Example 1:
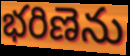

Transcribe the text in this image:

భరిణెను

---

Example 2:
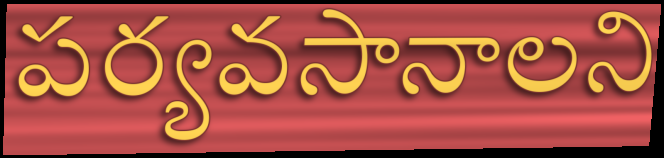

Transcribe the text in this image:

పర్యవసానాలని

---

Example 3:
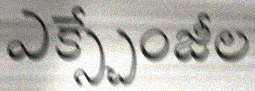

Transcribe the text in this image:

ఎక్స్చేంజీల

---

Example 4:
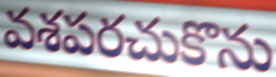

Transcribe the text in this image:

వశపరచుకొను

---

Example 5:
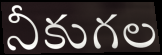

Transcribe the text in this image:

నీకుగల